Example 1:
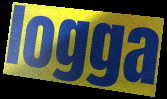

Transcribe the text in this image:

logga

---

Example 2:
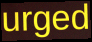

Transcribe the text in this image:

urged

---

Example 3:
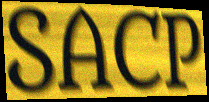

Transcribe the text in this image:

SACP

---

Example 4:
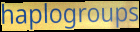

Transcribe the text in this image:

haplogroups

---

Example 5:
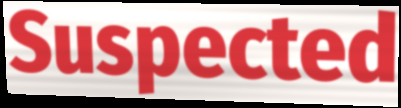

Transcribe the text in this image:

Suspected